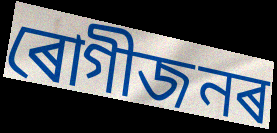
ৰোগীজনৰ